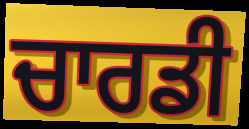
ਚਾਰਡੀ